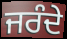
ਜਰੰਦੇ